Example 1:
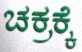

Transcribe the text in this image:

ಚಕ್ರಕ್ಕೆ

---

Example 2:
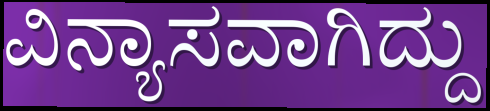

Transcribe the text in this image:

ವಿನ್ಯಾಸವಾಗಿದ್ದು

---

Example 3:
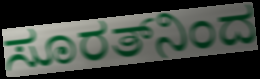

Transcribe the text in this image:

ಸೂರತ್‌ನಿಂದ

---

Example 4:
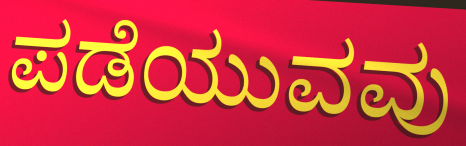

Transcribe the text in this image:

ಪಡೆಯುವವು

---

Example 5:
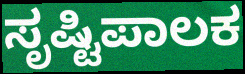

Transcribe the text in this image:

ಸೃಷ್ಟಿಪಾಲಕ